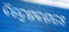
ବିଦ୍ୱେଷବଶତଃ